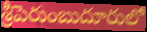
శ్రీపెరుంబుదూరులో